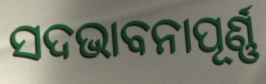
ସଦଭାବନାପୂର୍ଣ୍ଣ